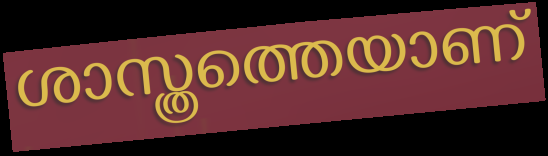
ശാസ്ത്രത്തെയാണ്